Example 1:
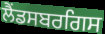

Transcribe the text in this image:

ਲੈਂਡਸਬਰਗਿਸ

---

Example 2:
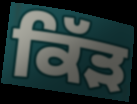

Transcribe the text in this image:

ਕਿੱੜ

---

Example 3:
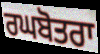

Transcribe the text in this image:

ਰਘਬੋਤਰਾ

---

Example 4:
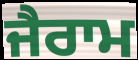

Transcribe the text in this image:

ਜੈਰਾਮ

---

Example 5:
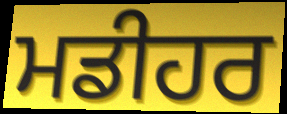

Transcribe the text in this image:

ਮਡੀਹਰ